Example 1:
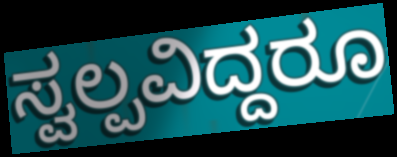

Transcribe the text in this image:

ಸ್ವಲ್ಪವಿದ್ದರೂ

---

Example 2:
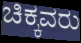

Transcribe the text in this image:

ಚಿಕ್ಕವರು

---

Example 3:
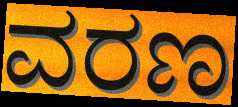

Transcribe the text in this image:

ವರಣ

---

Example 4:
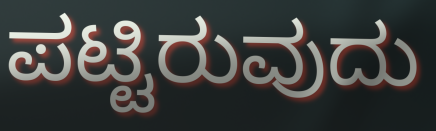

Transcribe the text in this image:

ಪಟ್ಟಿರುವುದು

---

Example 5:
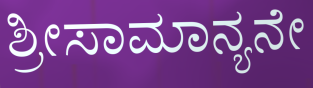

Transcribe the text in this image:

ಶ್ರೀಸಾಮಾನ್ಯನೇ